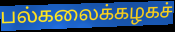
பல்கலைக்கழகச்